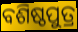
ବଶିଷ୍ଠପୁତ୍ର